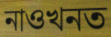
নাওখনত